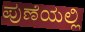
ಪುಣೆಯಲ್ಲಿ